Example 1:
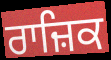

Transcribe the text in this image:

ਰਾਜ਼ਿਕ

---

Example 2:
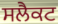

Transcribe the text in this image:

ਸਲੈਕਟ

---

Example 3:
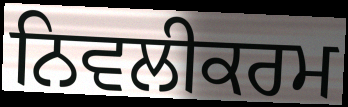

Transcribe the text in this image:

ਨਿਵਲੀਕਰਮ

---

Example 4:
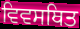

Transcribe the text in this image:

ਵਿਵਸਥਿਤ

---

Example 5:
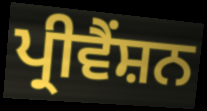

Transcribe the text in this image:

ਪ੍ਰੀਵੈਂਸ਼ਨ